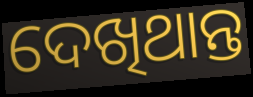
ଦେଖିଥାନ୍ତ